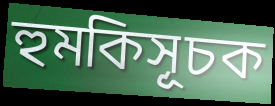
হুমকিসূচক